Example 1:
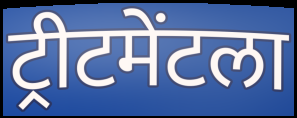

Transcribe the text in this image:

ट्रीटमेंटला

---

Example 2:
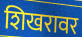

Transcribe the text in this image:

शिखरावर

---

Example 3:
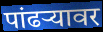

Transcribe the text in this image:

पांढर्‍यावर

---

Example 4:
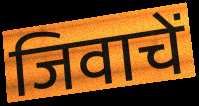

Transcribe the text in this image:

जिवाचें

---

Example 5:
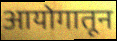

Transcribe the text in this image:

आयोगातून